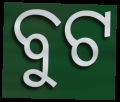
ବୁଟ